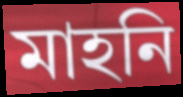
মাহনি